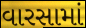
વારસામાં